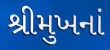
શ્રીમુખનાં